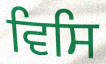
ਵਿਸਿ